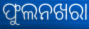
ଫୁଲନଖରା